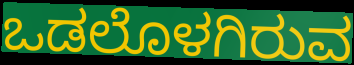
ಒಡಲೊಳಗಿರುವ